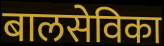
बालसेविका